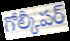
గోల్కీపర్